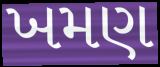
ખમણ